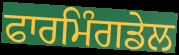
ਫਾਰਮਿੰਗਡੇਲ